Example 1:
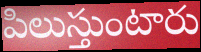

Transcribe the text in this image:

పిలుస్తుంటారు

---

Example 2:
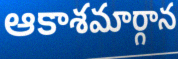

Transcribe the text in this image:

ఆకాశమార్గాన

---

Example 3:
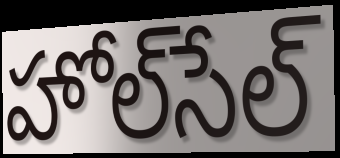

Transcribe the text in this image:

హోల్‌సేల్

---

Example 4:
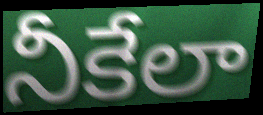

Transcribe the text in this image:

నీకేలా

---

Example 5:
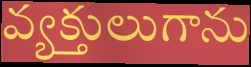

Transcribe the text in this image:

వ్యక్తులుగాను